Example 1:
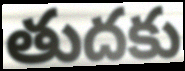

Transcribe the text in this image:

తుదకు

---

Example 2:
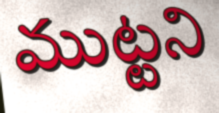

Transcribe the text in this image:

ముట్టని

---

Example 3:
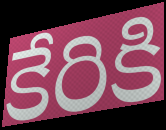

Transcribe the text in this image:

కేరికి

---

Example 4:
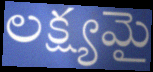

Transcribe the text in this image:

లక్ష్యమై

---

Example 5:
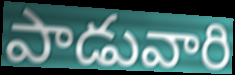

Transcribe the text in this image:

పాడువారి